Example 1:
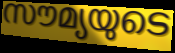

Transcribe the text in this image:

സൗമ്യയുടെ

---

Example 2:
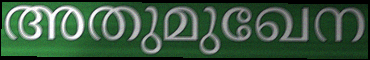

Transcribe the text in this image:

അതുമുഖേന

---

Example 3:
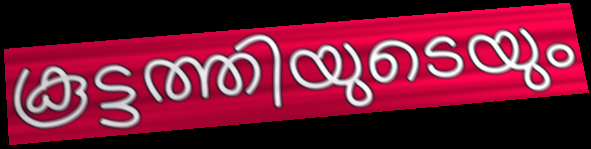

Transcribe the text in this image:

കൂട്ടത്തിയുടെയും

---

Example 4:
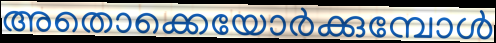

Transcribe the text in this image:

അതൊക്കെയോർക്കുമ്പോൾ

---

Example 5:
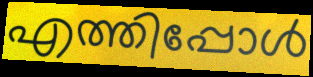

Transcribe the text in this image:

എത്തിപ്പോൾ